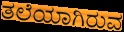
ತಲೆಯಾಗಿರುವ